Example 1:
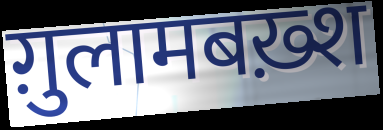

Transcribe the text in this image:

ग़ुलामबख़्श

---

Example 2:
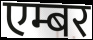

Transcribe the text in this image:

एम्बर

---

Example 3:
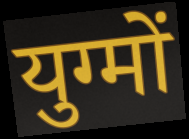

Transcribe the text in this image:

युग्मों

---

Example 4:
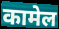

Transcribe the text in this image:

कामेल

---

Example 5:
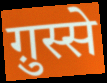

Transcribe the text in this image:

ग़ुस्से